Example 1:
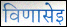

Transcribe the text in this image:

विणासेइ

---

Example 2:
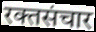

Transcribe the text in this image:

रक्तसंचार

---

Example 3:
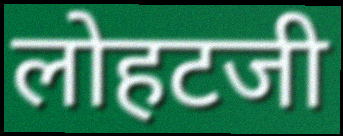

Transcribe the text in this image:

लोहटजी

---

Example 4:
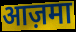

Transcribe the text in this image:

आज़मा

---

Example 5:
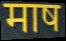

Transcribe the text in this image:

माष